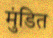
मुंडित